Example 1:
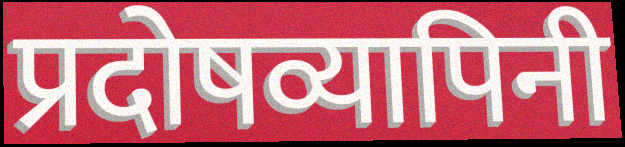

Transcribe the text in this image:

प्रदोषव्यापिनी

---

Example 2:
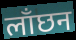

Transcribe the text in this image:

लाँछन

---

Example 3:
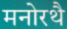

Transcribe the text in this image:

मनोरथै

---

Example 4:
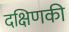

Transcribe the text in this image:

दक्षिणकी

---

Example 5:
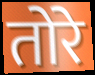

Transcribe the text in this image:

तोरे